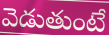
వెడుతుంటే